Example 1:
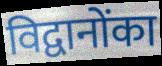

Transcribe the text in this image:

विद्वानोंका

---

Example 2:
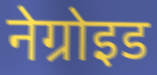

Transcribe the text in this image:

नेग्रोइड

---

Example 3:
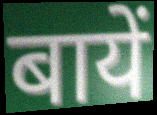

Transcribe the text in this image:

बायें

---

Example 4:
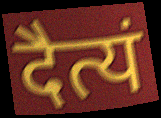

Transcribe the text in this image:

दैत्यं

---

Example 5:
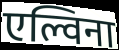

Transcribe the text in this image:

एल्विना